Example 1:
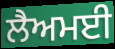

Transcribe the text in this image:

ਲੈਅਮਈ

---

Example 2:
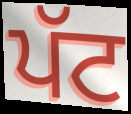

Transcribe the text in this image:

ਪੱਟ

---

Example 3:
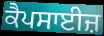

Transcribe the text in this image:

ਕੈਪਸਾਈਜ਼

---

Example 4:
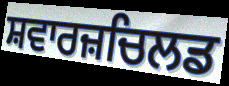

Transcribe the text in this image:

ਸ਼ਵਾਰਜ਼ਚਿਲਡ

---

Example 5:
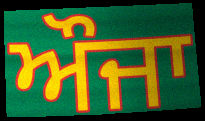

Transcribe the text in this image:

ਔਜਾ